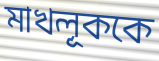
মাখলূককে